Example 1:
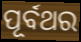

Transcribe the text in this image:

ପୂର୍ବଥର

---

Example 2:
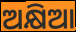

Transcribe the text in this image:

ଅକ୍ଷିଆ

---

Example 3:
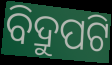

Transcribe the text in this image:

ବିଦ୍ରୁପଟି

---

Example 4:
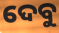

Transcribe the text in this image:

ଦେବୁ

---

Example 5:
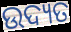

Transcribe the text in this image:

ଉଦ୍ୟତ